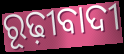
ରୂଢ଼ୀବାଦୀ